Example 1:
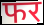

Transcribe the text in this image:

फर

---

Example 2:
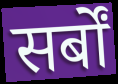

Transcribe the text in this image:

सर्बों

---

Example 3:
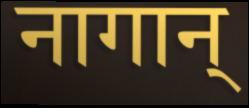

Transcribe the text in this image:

नागान्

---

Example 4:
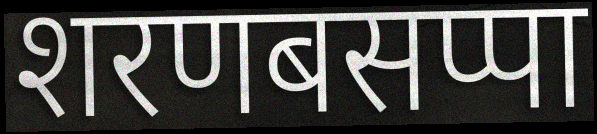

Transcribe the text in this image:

शरणबसप्पा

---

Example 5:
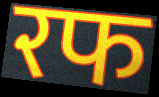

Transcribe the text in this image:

रफ